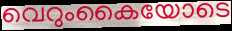
വെറുംകൈയോടെ